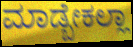
ಮಾಡ್ಬೇಕಲ್ಲಾ